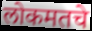
लोकमतचे